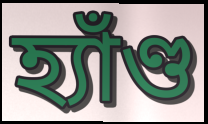
হ্যাঁণ্ড